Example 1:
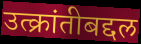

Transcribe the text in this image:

उत्क्रांतीबद्दल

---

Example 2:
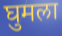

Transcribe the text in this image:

घुमला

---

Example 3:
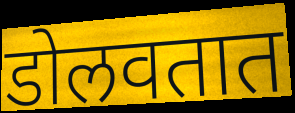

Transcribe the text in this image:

डोलवतात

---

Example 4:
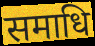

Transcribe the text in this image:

समाधि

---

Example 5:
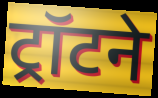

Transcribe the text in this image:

ट्रॉटने